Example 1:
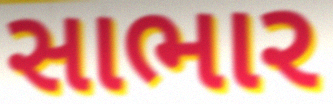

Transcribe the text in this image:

સાભાર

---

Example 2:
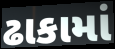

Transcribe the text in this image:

ઢાકામાં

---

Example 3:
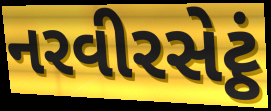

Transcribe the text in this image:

નરવીરસેટ્ઠં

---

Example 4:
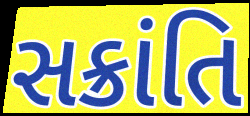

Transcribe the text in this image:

સક્રાંતિ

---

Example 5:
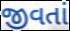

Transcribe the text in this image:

જીવતાં